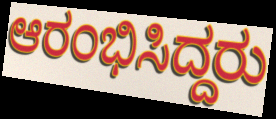
ಆರಂಭಿಸಿದ್ದರು